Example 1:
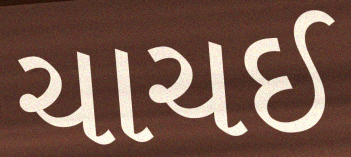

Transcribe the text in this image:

ચાચઈ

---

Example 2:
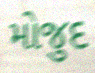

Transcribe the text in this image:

મોજુદ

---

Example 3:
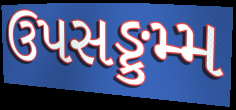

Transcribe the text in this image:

ઉપસઙ્કમ્મ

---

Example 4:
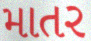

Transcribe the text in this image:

માતર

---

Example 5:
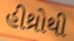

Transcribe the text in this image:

હીથ્રોથી